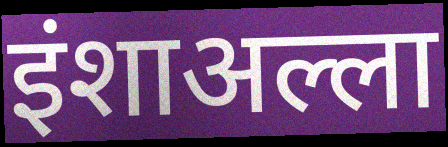
इंशाअल्ला